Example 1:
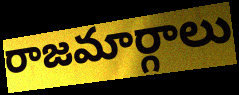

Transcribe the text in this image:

రాజమార్గాలు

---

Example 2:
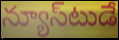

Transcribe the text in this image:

న్యూస్‌టుడే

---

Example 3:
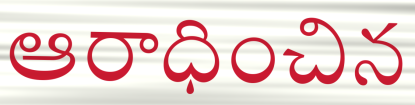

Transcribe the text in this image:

ఆరాధించిన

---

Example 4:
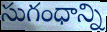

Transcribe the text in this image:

సుగంధాన్ని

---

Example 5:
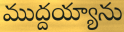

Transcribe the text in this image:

ముద్దయ్యాను